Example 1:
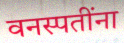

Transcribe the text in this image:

वनस्‍पतींना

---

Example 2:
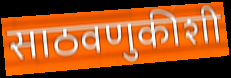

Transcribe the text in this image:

साठवणुकीशी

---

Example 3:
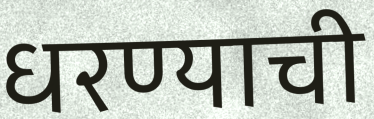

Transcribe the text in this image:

धरण्याची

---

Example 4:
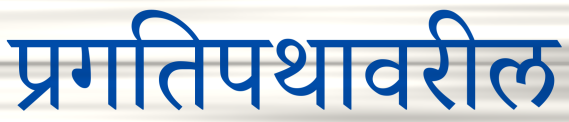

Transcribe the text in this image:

प्रगतिपथावरील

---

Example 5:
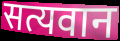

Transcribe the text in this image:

सत्यवान